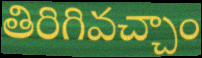
తిరిగివచ్చాం